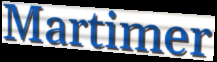
Martimer